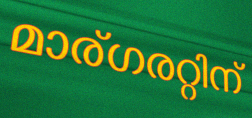
മാര്ഗരറ്റിന്